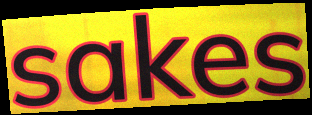
sakes